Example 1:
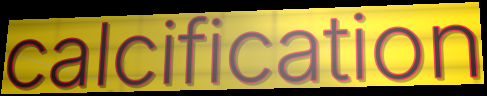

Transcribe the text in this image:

calcification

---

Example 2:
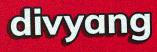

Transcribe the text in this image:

divyang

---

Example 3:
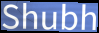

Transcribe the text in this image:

Shubh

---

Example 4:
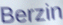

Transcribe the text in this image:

Berzin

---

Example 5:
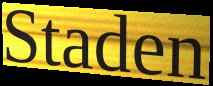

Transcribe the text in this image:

Staden